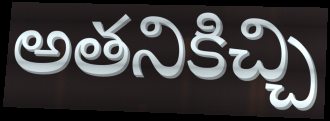
అతనికిచ్చి